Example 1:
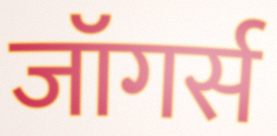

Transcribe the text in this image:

जॉगर्स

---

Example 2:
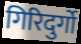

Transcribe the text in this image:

गिरिदुर्गो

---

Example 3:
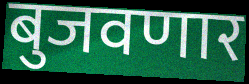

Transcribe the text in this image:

बुजवणार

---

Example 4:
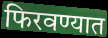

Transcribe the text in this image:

फिरवण्यात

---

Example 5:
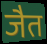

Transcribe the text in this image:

जैत